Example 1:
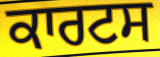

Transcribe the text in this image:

ਕਾਰਟਸ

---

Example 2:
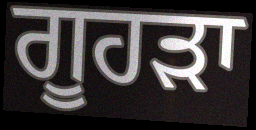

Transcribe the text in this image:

ਗੂਹੜਾ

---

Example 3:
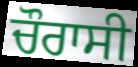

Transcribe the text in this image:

ਚੌਰਾਸੀ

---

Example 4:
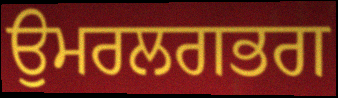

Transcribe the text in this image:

ਉੁਮਰਲਗਭਗ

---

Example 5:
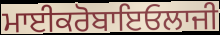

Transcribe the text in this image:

ਮਾਈਕਰੋਬਾਇਓਲਾਜੀ